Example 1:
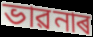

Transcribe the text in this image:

ভাৱনাৰ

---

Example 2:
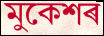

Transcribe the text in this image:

মুকেশৰ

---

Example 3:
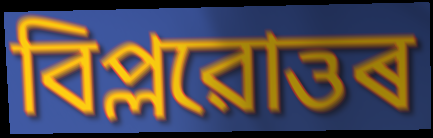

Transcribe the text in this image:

বিপ্লৱোত্তৰ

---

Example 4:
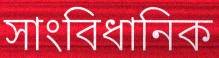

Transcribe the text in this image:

সাংবিধানিক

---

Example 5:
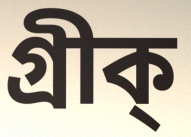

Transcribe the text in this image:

গ্ৰীক্